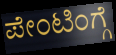
ಪೇಂಟಿಂಗ್ಗೆ